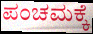
ಪಂಚಮಕ್ಕೆ